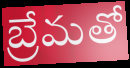
బ్రేమతో